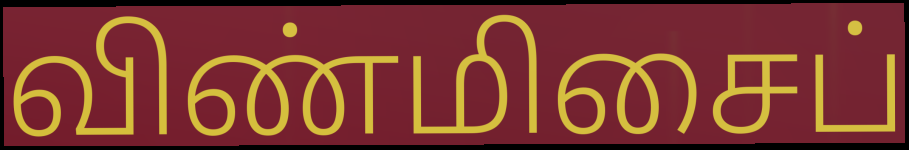
விண்மிசைப்